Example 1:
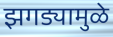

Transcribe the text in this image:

झगड्यामुळे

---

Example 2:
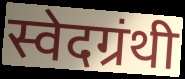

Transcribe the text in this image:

स्वेदग्रंथी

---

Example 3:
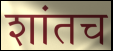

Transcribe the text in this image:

शांतच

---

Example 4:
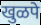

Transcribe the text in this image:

खुळपे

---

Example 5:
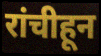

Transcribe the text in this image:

रांचीहून